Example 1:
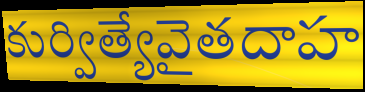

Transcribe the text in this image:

కుర్విత్యేవైతదాహ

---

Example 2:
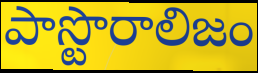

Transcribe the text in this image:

పాస్టొరాలిజం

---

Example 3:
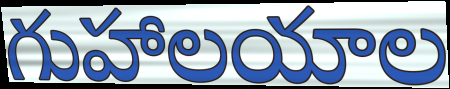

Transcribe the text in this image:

గుహాలయాల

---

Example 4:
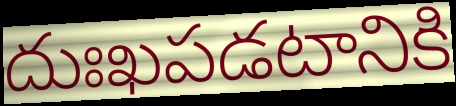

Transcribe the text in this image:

దుఃఖపడటానికి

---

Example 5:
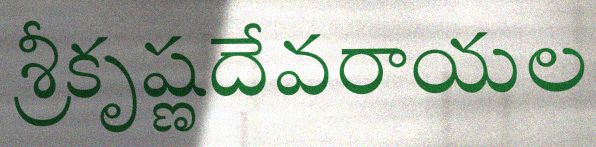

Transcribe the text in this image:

శ్రీకృష్ణదేవరాయల